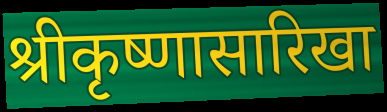
श्रीकृष्णासारिखा